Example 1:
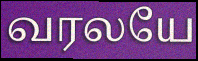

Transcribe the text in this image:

வரலயே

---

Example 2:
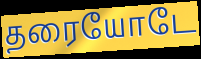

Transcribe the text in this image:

தரையோடே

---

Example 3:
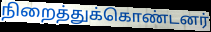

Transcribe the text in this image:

நிறைத்துக்கொண்டனர்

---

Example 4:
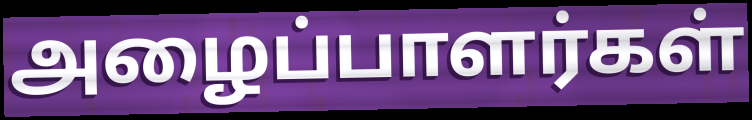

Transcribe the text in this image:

அழைப்பாளர்கள்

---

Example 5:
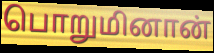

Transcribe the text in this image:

பொறுமினான்